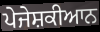
ਪੇਜੇਸ਼ਕੀਆਨ